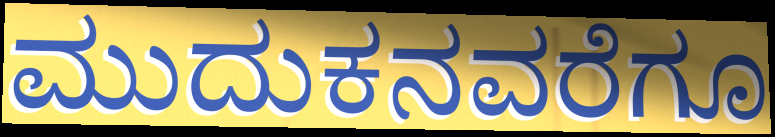
ಮುದುಕನವರೆಗೂ